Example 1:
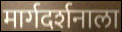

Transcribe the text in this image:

मार्गदर्शनाला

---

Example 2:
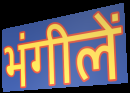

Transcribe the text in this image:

भंगीलें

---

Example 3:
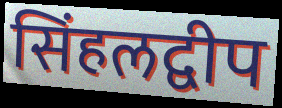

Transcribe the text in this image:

सिंहलद्वीप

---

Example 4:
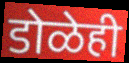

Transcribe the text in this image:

डोळेही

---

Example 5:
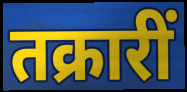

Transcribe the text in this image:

तक्रारीं